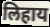
लिहाय